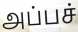
அப்பச்